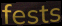
fests